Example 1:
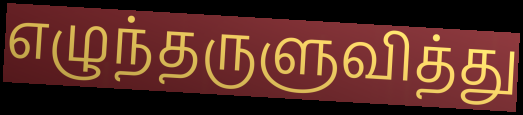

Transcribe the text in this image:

எழுந்தருளுவித்து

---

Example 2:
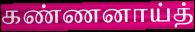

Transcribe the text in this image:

கண்ணனாய்த்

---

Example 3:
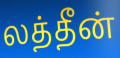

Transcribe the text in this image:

லத்தீன்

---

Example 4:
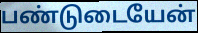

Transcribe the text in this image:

பண்டுடையேன்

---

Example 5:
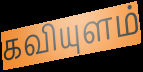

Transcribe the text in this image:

கவியுளம்